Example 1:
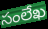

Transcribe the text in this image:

సంలేఖ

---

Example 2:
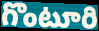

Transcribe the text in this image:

గొంటూరి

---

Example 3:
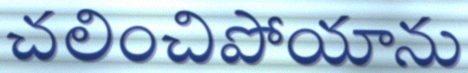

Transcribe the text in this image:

చలించిపోయాను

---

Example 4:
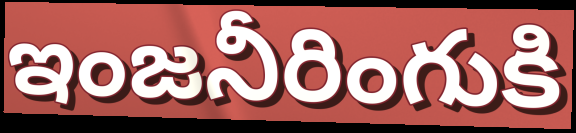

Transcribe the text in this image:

ఇంజనీరింగుకి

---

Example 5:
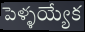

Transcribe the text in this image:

పెళ్ళయ్యేక